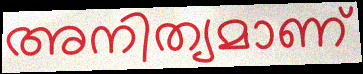
അനിത്യമാണ്